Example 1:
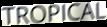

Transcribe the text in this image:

TROPICAL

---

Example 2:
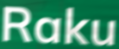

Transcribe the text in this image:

Raku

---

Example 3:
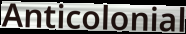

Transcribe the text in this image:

Anticolonial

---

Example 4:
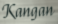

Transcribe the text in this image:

Kangan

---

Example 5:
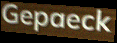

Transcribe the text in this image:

Gepaeck